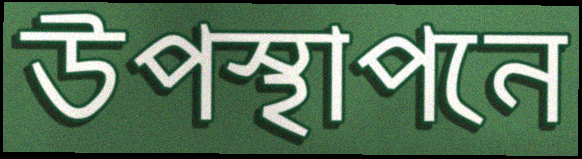
উপস্থাপনে